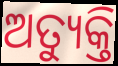
ଅତ୍ୟୁକ୍ତି